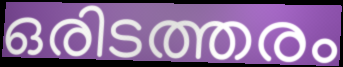
ഒരിടത്തരം